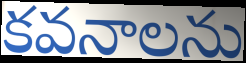
కవనాలను